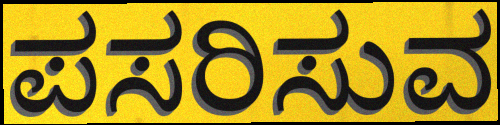
ಪಸರಿಸುವ